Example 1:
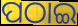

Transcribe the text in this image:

ପଠାଇ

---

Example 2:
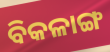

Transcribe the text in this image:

ବିକଳାଙ୍ଗ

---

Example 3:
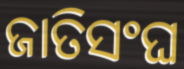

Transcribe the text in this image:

ଜାତିସଂଘ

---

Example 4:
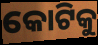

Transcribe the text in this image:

କୋଟିକୁ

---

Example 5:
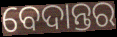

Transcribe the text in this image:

ବେଦାନ୍ତର